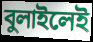
বুলাইলেই